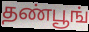
தண்பூங்